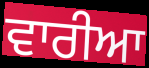
ਵਾਰੀਆ